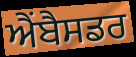
ਐਂਬੈਸਡਰ